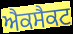
ਐਕਸੈਕਟ